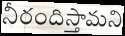
నీరందిస్తామని